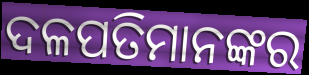
ଦଳପତିମାନଙ୍କର